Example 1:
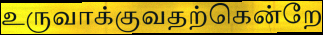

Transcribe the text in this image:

உருவாக்குவதற்கென்றே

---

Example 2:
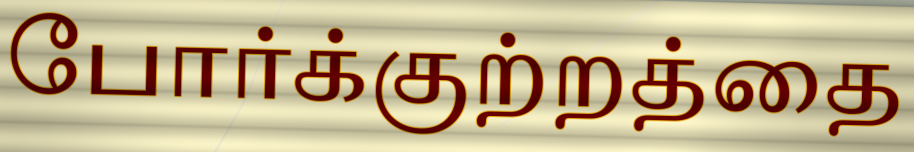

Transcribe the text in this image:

போர்க்குற்றத்தை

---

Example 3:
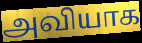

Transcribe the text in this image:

அவியாக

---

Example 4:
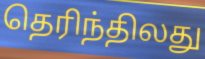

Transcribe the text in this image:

தெரிந்திலது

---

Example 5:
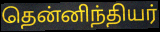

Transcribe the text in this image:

தென்னிந்தியர்